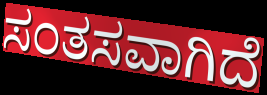
ಸಂತಸವಾಗಿದೆ